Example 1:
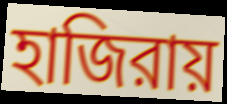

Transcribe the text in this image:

হাজিরায়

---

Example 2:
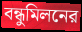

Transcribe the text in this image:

বন্ধুমিলনের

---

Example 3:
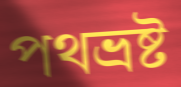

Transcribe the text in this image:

পথভ্রষ্ট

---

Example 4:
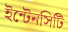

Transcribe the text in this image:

ইন্টেনসিটি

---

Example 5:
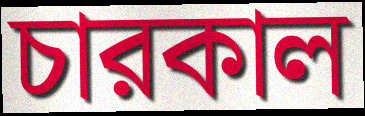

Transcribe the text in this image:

চারকাল